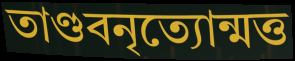
তাণ্ডবনৃত্যোন্মত্ত